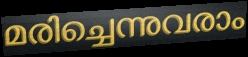
മരിച്ചെന്നുവരാം